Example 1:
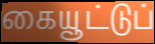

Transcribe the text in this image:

கையூட்டுப்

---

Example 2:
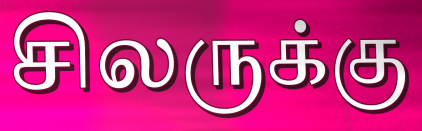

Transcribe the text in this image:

சிலருக்கு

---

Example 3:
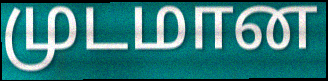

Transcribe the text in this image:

முடமான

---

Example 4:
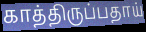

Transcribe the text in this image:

காத்திருப்பதாய்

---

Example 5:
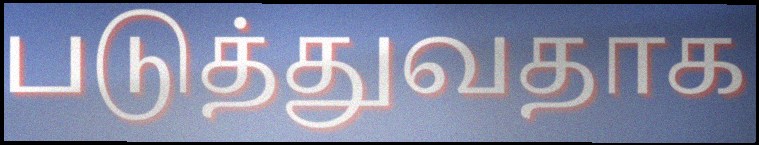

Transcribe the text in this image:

படுத்துவதாக